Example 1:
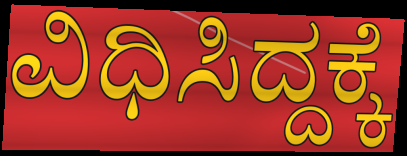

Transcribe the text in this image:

ವಿಧಿಸಿದ್ದಕ್ಕೆ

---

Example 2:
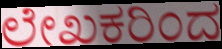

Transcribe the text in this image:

ಲೇಖಕರಿಂದ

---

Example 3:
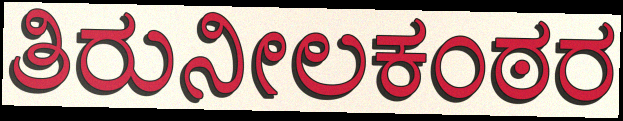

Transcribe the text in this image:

ತಿರುನೀಲಕಂಠರ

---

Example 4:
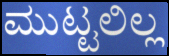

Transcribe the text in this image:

ಮುಟ್ಟಲಿಲ್ಲ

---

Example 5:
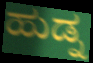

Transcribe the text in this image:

ಹುಡ್ನ